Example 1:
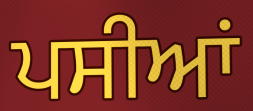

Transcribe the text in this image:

ਪਸੀਆਂ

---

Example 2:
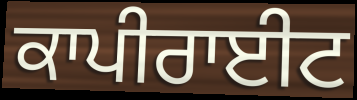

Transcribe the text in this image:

ਕਾਪੀਰਾਈਟ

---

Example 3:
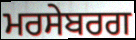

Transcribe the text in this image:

ਮਰਸੇਬਰਗ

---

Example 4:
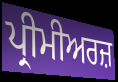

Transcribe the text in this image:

ਪ੍ਰੀਮੀਅਰਜ਼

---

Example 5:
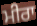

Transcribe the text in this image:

ਮੀਰਾ